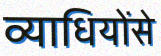
व्याधियोंसे